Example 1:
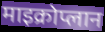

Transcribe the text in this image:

माइक्रोप्लान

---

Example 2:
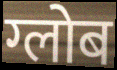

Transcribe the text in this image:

ग्‍लोब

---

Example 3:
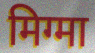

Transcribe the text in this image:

मिग्मा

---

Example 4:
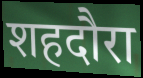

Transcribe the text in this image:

शहदौरा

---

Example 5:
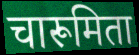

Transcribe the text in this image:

चारूमिता